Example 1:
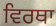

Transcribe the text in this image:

ਵਿਰਥਾ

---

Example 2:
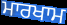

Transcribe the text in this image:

ਮਾਰਖਾਮ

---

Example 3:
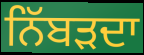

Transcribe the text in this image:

ਨਿੱਬੜਦਾ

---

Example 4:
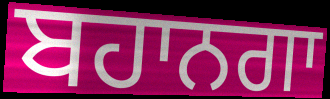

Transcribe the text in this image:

ਬਹਾਨਗਾ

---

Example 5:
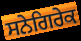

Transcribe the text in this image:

ਸਨੇਗਿਰੇਕ